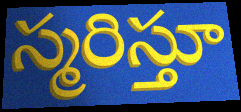
స్మరిస్తూ